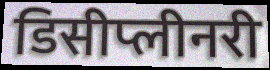
डिसीप्लीनरी